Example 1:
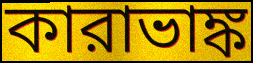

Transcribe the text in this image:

কারাভাঙ্ক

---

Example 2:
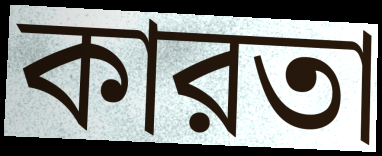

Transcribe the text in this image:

কারতা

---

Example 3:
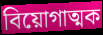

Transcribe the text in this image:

বিয়োগাত্মক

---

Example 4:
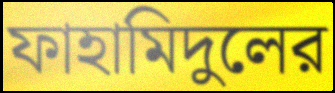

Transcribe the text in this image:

ফাহামিদুলের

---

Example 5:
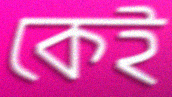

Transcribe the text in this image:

কেই